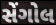
સેંગોલ